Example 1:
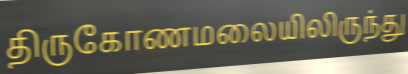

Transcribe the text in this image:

திருகோணமலையிலிருந்து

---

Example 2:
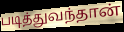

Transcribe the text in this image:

படித்துவந்தான்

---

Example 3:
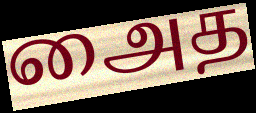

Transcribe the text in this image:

அைத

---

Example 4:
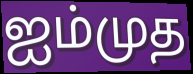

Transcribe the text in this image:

ஐம்முத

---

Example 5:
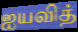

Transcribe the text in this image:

ஐயவித்